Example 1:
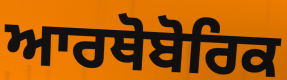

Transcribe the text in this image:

ਆਰਥੋਬੋਰਿਕ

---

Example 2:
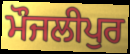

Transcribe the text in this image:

ਮੌਜਲੀਪੁਰ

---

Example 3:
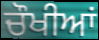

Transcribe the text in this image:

ਚੌਖੀਆਂ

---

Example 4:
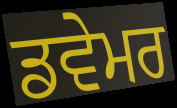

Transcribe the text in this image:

ਡਵੇਮਰ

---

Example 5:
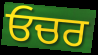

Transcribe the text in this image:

ਓਚਰ